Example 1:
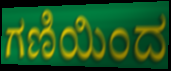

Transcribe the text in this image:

ಗಣಿಯಿಂದ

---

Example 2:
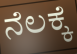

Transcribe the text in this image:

ನೆಲಕ್ಕೆ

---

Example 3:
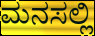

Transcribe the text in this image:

ಮನಸಲ್ಲಿ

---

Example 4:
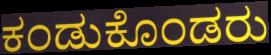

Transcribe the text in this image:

ಕಂಡುಕೊಂಡರು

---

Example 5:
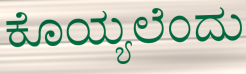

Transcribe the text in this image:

ಕೊಯ್ಯಲೆಂದು